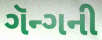
ગૅન્ગની